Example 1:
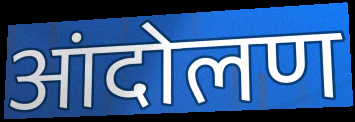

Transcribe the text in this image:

आंदोलण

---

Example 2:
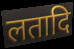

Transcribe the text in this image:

लतादि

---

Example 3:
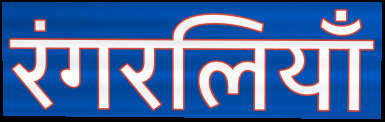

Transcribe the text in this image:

रंगरलियाँ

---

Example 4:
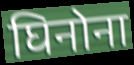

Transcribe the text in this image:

घिनोना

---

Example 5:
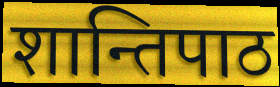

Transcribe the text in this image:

शान्तिपाठ